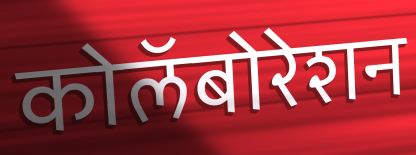
कोलॅबोरेशन